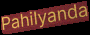
Pahilyanda